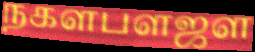
நகளபளஜள